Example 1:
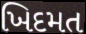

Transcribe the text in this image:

ખિદમત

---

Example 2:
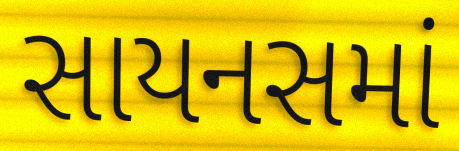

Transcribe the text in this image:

સાયનસમાં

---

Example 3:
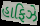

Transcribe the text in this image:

હાફિઝે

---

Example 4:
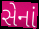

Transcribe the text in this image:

સેનાં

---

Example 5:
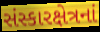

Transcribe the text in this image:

સંસ્કારક્ષેત્રનાં